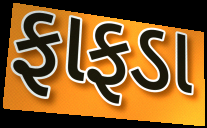
ફાફડા